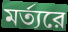
মর্ত্যরে